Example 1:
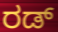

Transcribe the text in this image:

ರಡ್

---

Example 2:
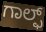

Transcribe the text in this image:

ಗಾಲ್ಫ್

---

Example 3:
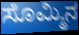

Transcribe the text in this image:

ಸೊಮ್ಮಿನ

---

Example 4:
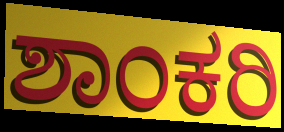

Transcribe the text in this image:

ಶಾಂಕರಿ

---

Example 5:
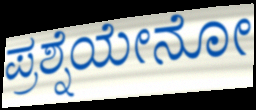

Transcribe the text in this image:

ಪ್ರಶ್ನೆಯೇನೋ